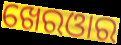
ଖେରଓାର